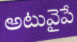
అటువైపే